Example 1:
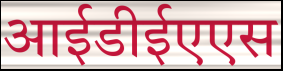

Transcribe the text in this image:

आईडीईएएस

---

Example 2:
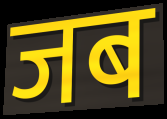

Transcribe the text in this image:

जब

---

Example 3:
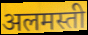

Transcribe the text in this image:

अलमस्ती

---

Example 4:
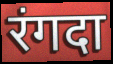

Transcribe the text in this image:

रंगदा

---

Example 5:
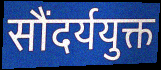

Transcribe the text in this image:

सौंदर्ययुक्त